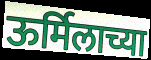
ऊर्मिलाच्या